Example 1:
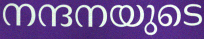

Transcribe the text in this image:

നന്ദനയുടെ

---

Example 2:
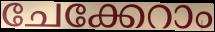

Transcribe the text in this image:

ചേക്കേറാം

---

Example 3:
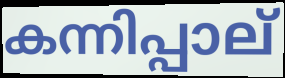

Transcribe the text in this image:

കന്നിപ്പാല്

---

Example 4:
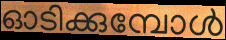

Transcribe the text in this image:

ഓടിക്കുമ്പോൾ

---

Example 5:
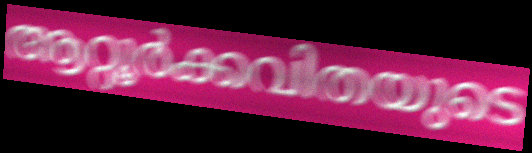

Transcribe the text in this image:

ആറ്റൂർക്കവിതയുടെ